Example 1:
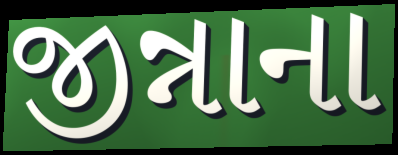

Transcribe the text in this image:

જીન્નાના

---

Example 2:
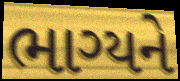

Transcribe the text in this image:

ભાગ્યને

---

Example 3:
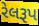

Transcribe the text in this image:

રેલરૂપ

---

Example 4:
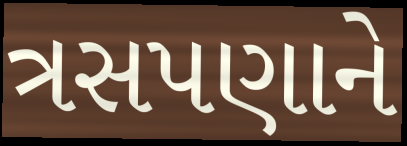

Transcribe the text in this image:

ત્રસપણાને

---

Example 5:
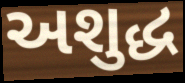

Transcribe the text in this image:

અશુદ્ધ